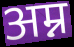
अम्न